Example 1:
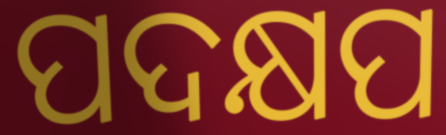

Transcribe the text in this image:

ପଦକ୍ଷପ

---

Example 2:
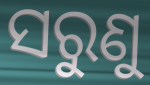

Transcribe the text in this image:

ସରୁଣୁ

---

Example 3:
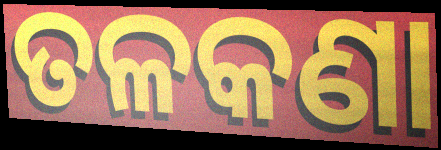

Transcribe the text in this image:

ତଳକଣା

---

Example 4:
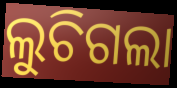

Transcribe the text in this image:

ଲୁଚିଗଲା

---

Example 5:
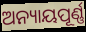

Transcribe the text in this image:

ଅନ୍ୟାୟପୂର୍ଣ୍ଣ